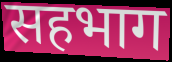
सहभाग